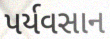
પર્યવસાન